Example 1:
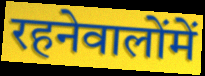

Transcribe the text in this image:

रहनेवालोंमें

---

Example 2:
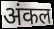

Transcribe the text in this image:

अंकल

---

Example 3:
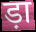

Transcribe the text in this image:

ड़ा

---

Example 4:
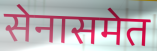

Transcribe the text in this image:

सेनासमेत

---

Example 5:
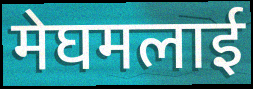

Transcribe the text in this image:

मेघमलाई